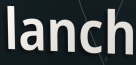
lanch